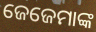
ଜେଜେମାଙ୍କ